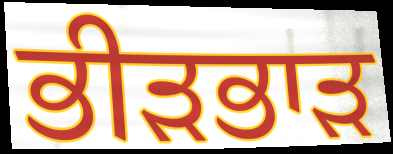
ਭੀੜਭਾੜ